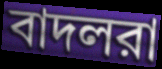
বাদলরা